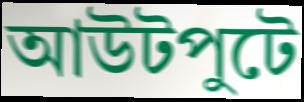
আউটপুটে